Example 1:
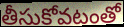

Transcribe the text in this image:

తీసుకోవటంతో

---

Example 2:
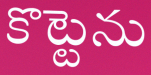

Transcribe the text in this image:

కొట్టెను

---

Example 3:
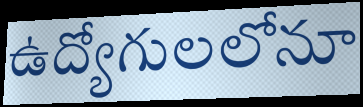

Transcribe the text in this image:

ఉద్యోగులలోనూ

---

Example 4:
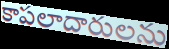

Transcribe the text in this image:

కాపలాదారులను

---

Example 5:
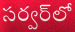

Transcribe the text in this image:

సర్వర్‌లో